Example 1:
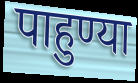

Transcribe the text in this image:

पाहुण्या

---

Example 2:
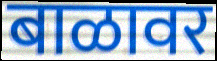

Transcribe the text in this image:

बाळावर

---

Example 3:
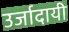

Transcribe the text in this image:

उर्जादायी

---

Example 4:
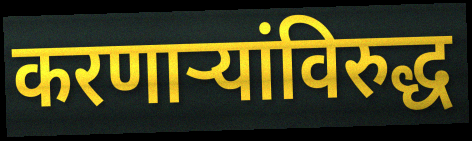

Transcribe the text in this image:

करणाऱ्यांविरुद्ध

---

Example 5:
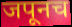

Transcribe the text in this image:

जपूनच